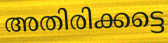
അതിരിക്കട്ടെ